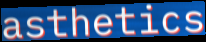
asthetics